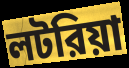
লটরিয়া